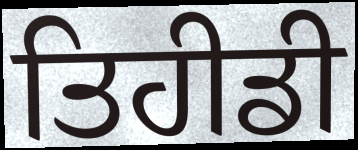
ਤਿਹੀਡੀ